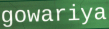
gowariya